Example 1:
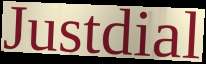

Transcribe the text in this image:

Justdial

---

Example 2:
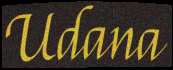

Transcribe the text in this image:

Udana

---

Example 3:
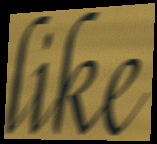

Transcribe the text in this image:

like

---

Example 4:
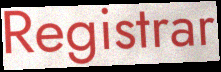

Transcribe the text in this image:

Registrar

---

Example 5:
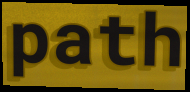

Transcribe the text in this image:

path